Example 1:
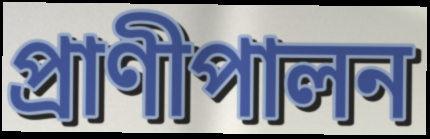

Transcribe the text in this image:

প্রাণীপালন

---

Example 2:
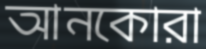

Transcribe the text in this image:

আনকোরা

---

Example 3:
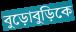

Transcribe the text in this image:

বুড়োবুড়িকে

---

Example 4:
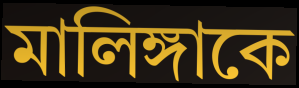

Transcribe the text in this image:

মালিঙ্গাকে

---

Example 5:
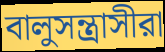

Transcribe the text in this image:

বালুসন্ত্রাসীরা